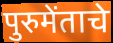
पुरुमेंताचे